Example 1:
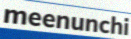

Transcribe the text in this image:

meenunchi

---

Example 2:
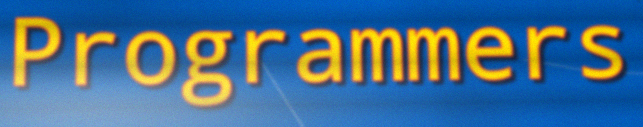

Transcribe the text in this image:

Programmers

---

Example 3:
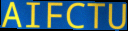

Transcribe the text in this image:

AIFCTU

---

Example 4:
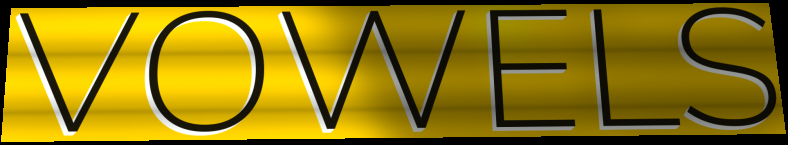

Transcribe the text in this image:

VOWELS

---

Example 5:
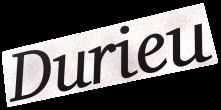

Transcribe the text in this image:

Durieu